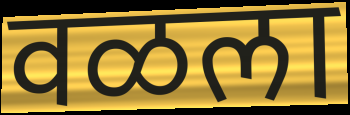
वळला